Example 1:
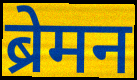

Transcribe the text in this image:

ब्रेमन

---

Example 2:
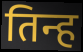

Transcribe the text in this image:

तिन्ह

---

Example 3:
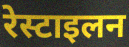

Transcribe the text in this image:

रेस्टाइलन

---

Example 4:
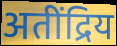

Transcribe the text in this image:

अतींद्रिय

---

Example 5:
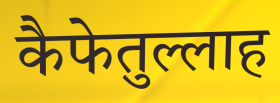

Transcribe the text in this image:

कैफेतुल्लाह